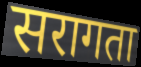
सरागता